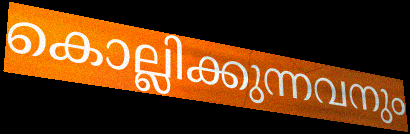
കൊല്ലിക്കുന്നവനും